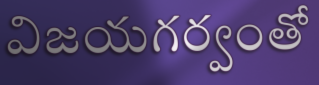
విజయగర్వంతో